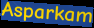
Asparkam